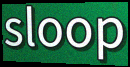
sloop